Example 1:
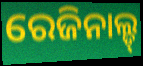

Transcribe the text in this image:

ରେଜିନାଲ୍ଡ୍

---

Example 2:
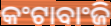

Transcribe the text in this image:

କଂଟାବାଂଜି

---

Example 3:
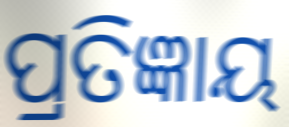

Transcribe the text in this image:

ପ୍ରତିଜ୍ଞାୟ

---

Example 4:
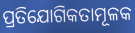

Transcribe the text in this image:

ପ୍ରତିଯୋଗିକତାମୂଳକ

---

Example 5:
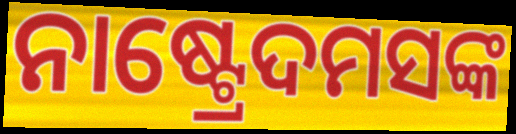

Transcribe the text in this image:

ନାଷ୍ଟ୍ରେଦମସଙ୍କ